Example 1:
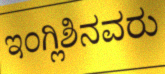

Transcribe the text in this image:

ಇಂಗ್ಲಿಶಿನವರು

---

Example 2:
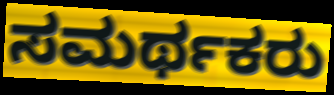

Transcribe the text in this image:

ಸಮರ್ಥಕರು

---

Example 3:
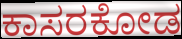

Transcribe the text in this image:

ಕಾಸರಕೋಡ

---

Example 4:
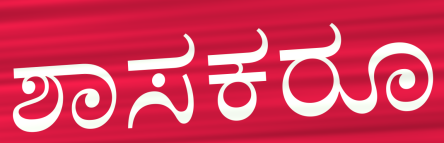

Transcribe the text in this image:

ಶಾಸಕರೂ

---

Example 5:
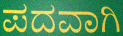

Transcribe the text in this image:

ಪದವಾಗಿ